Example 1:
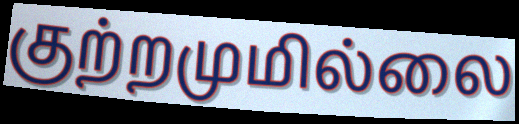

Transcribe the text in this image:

குற்றமுமில்லை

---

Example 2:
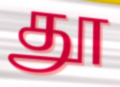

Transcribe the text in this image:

தூ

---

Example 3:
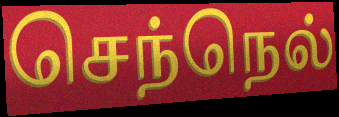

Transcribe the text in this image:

செந்நெல்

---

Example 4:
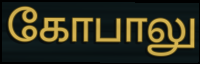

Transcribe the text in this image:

கோபாலு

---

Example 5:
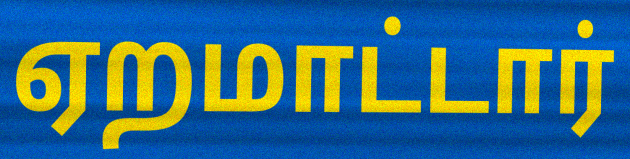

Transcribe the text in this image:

ஏறமாட்டார்